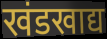
खंडखाद्य